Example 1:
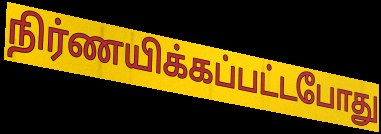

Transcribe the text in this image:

நிர்ணயிக்கப்பட்டபோது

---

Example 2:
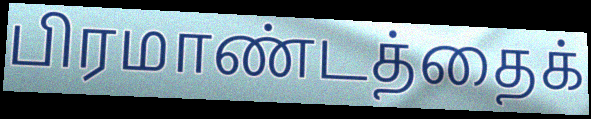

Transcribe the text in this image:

பிரமாண்டத்தைக்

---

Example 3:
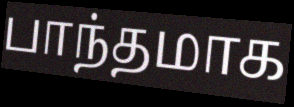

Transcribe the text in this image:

பாந்தமாக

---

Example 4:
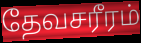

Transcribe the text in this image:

தேவசரீரம்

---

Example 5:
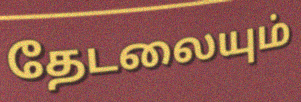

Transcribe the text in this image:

தேடலையும்